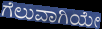
ಗೆಲುವಾಗಿಯೇ